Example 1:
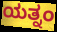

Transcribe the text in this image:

ಯತ್ನಂ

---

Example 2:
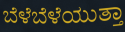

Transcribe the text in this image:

ಬೆಳೆಬೆಳೆಯುತ್ತಾ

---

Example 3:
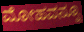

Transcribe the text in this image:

ಮೋಹವನ್ನೂ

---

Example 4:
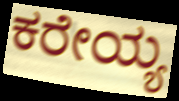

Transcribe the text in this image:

ಕರೇಯ್ಯ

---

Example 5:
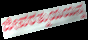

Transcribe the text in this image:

ಜೀವರತ್ನುಯಯನ್ನ